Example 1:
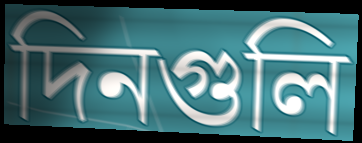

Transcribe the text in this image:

দিনগুলি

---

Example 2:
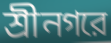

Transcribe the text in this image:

শ্রীনগরে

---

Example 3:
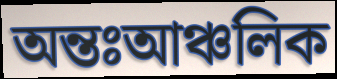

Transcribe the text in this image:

অন্তঃআঞ্চলিক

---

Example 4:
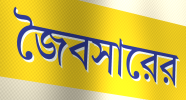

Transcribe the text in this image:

জৈবসারের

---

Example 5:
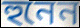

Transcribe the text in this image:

হুনেন